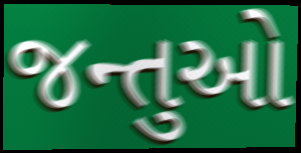
જન્તુઓ